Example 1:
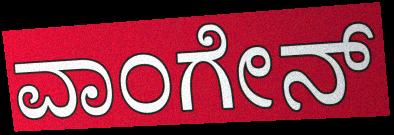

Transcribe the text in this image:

ವಾಂಗೇನ್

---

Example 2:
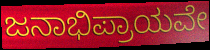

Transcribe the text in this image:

ಜನಾಭಿಪ್ರಾಯವೇ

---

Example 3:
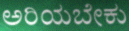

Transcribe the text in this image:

ಅರಿಯಬೇಕು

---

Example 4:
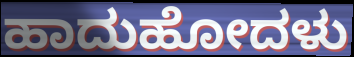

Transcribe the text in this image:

ಹಾದುಹೋದಳು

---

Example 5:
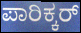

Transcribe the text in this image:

ಪಾರಿಕ್ಕರ್